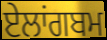
ਏਲਾਂਗਬਮ